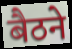
बैठने